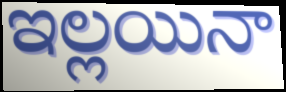
ఇల్లయినా